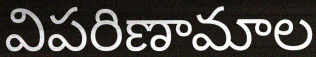
విపరిణామాల